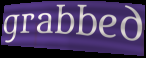
grabbed